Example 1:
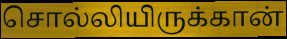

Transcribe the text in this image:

சொல்லியிருக்கான்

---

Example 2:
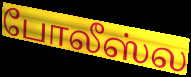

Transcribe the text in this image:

போலீஸ்ல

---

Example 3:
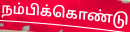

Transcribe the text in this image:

நம்பிக்கொண்டு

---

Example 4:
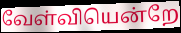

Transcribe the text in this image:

வேள்வியென்றே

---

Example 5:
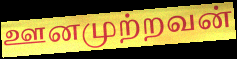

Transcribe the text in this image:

ஊனமுற்றவன்